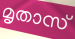
മൃതാസ്